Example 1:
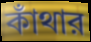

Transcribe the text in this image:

কাঁথার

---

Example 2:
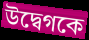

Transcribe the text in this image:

উদ্বেগকে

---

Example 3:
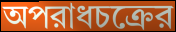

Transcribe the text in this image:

অপরাধচক্রের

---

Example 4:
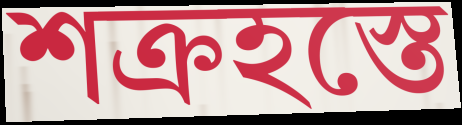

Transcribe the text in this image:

শক্রহস্তে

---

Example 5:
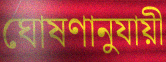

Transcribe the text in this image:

ঘোষণানুযায়ী